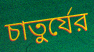
চাতুর্যের